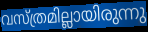
വസ്ത്രമില്ലായിരുന്നു